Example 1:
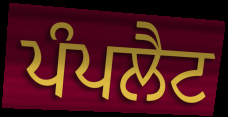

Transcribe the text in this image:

ਪੰਪਲੈਟ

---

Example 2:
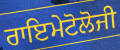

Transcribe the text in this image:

ਰਾਇਮੇਟੋਲੋਜੀ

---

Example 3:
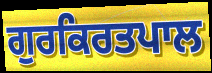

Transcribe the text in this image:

ਗੁਰਕਿਰਤਪਾਲ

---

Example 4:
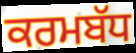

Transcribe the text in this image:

ਕਰਮਬੱਧ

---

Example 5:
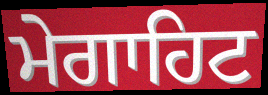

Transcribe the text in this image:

ਮੇਗਾਹਿਟ